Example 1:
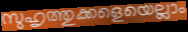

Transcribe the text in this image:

സുഹൃത്തുക്കളെയെല്ലാം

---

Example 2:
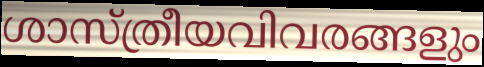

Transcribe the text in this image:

ശാസ്ത്രീയവിവരങ്ങളും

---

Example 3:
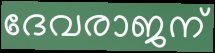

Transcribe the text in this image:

ദേവരാജന്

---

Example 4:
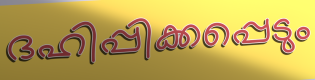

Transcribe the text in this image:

ദഹിപ്പിക്കപ്പെടും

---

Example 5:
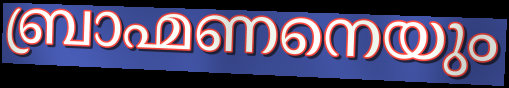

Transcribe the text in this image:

ബ്രാഹ്മണനെയും